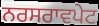
ਨਰਸਰਾਵਪੇਟ